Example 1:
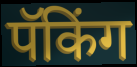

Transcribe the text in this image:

पॅकिंग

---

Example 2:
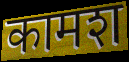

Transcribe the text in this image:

कामश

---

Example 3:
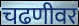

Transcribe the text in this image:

चढणीवर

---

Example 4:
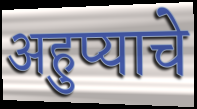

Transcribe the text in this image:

अहुप्याचे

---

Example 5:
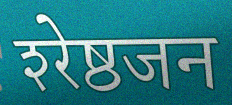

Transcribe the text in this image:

श्रेष्ठजन